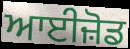
ਆਈਜ਼ੋਡ